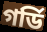
গর্ডি